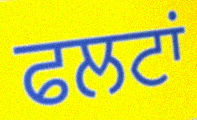
ਫਲਟਾਂ